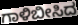
ಗಾಳಿಬೀಸಿದ